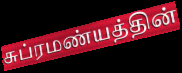
சுப்ரமண்யத்தின்